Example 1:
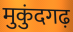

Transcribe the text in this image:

मुकुंदगढ़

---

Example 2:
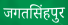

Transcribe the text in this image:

जगतसिंहपुर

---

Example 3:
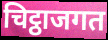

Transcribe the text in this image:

चिट्ठाजगत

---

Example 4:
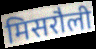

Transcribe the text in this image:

मिसरौली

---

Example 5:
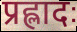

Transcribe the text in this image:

प्रह्लादः